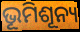
ଭୂମିଶୂନ୍ୟ